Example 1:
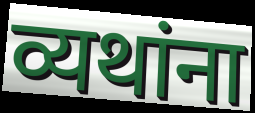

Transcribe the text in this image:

व्यथांना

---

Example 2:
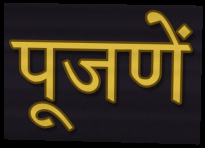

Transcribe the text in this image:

पूजणें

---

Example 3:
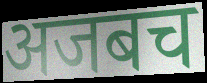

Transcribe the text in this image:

अजबच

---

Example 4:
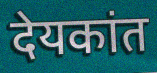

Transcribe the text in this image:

देयकांत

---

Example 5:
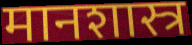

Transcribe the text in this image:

मानशास्त्र